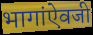
भागांऐवजी